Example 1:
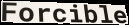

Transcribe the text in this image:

Forcible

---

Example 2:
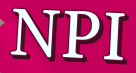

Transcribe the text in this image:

NPI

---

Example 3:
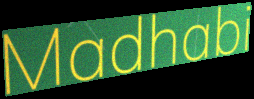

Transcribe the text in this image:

Madhabi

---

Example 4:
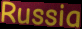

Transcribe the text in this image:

Russia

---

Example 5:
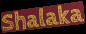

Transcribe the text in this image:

Shalaka